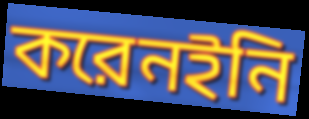
করেনইনি